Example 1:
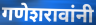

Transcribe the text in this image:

गणेशरावांनी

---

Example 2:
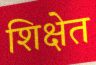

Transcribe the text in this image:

शिक्षेत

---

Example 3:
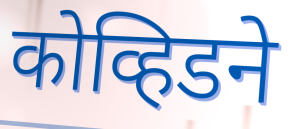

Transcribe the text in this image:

कोव्हिडने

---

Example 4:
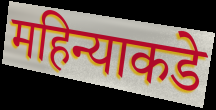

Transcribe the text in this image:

महिन्याकडे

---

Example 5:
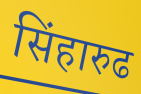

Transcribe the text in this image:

सिंहारुढ